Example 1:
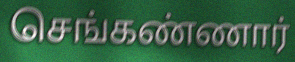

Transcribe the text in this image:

செங்கண்ணார்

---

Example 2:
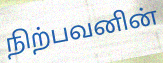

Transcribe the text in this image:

நிற்பவனின்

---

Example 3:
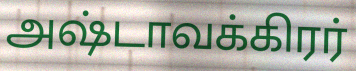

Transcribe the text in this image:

அஷ்டாவக்கிரர்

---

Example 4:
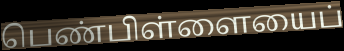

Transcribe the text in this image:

பெண்பிள்ளையைப்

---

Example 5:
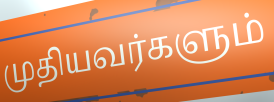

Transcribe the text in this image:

முதியவர்களும்